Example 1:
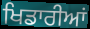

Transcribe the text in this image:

ਖਿਡਾਰੀਆਂ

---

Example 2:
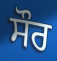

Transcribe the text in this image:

ਸੌਰ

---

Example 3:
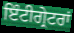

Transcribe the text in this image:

ਇੰਟੀਗ੍ਰੇਟਰਾਂ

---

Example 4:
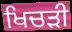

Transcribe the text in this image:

ਖਿਚੜੀ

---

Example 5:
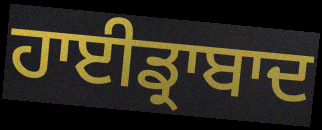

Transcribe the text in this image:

ਹਾਈਡ੍ਰਾਬਾਦ